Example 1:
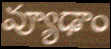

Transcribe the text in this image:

వ్యూఢాం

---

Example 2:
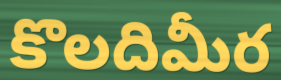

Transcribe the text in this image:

కొలదిమీర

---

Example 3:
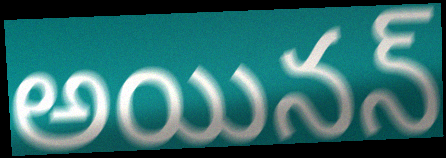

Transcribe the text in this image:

అయినన్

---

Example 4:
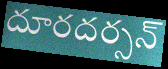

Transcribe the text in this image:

దూరదర్సన్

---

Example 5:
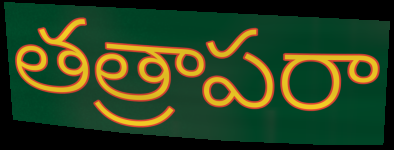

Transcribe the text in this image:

తత్రాపరా